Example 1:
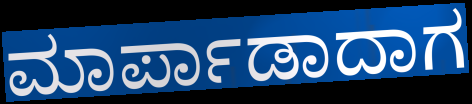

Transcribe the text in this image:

ಮಾರ್ಪಾಡಾದಾಗ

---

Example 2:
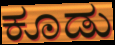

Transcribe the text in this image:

ಕೂಡು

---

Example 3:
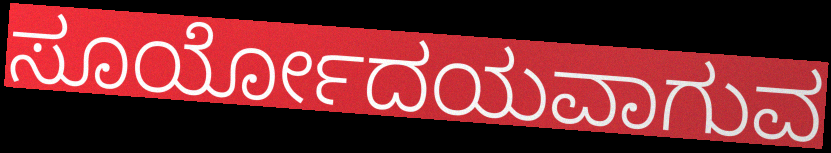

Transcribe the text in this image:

ಸೂರ್ಯೋದಯವಾಗುವ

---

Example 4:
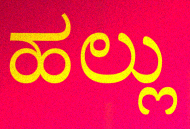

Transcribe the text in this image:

ಹಲ್ಲು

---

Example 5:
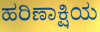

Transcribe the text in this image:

ಹರಿಣಾಕ್ಷಿಯ